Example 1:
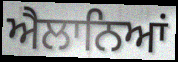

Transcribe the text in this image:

ਐਲਾਨਿਆਂ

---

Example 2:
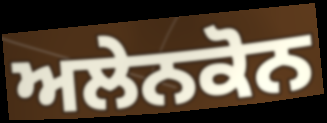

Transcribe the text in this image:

ਅਲੇਨਕੋਨ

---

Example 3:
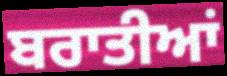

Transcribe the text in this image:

ਬਰਾਤੀਆਂ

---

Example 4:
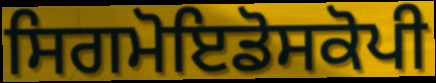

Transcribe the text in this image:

ਸਿਗਮੋਇਡੋਸਕੋਪੀ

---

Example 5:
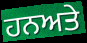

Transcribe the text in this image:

ਹਨਅਤੇ